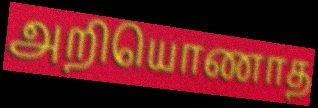
அறியொணாத